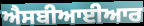
ਐਸਬੀਆਈਆਰ